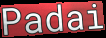
Padai